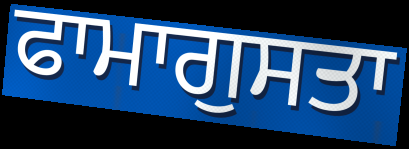
ਫਾਮਾਗੁਸਤਾ